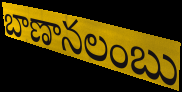
బాణానలంబు